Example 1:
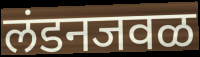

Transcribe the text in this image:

लंडनजवळ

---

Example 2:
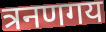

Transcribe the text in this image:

त्रनणगय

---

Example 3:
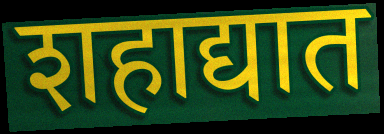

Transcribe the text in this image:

शहाद्यात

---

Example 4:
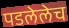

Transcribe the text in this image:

पडलेलेच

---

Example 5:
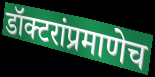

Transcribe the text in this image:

डॉक्टरांप्रमाणेच